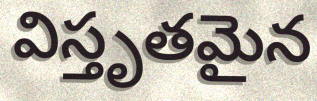
విస్తృతమైన